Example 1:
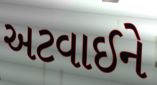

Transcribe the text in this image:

અટવાઈને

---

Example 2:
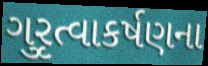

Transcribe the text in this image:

ગુરૃત્વાકર્ષણના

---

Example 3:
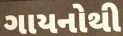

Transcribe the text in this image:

ગાયનોથી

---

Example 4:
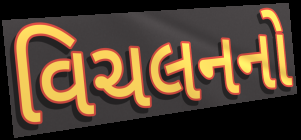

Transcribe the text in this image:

વિચલનનો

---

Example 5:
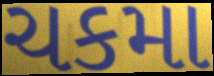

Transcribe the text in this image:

ચકમા